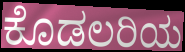
ಕೊಡಲರಿಯ